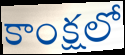
కాంక్షలో